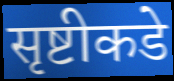
सृष्टीकडे